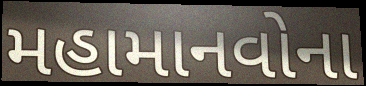
મહામાનવોના